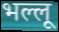
भल्लू